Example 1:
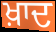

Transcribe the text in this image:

ਖ਼ਾਦ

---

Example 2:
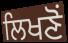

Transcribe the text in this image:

ਲਿਖਣੋਂ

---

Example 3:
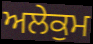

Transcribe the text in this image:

ਅਲੇਕੁਮ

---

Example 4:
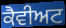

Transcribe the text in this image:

ਕੈਵੀਅਟ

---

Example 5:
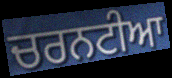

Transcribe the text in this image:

ਚਰਨਟੀਆ